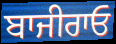
ਬਾਜੀਰਾਓ